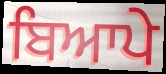
ਬਿਆਪੇ